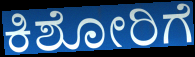
ಕಿಶೋರಿಗೆ